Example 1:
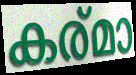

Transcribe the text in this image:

കര്മാ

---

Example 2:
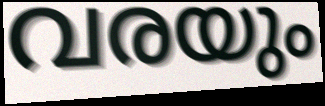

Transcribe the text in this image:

വരയും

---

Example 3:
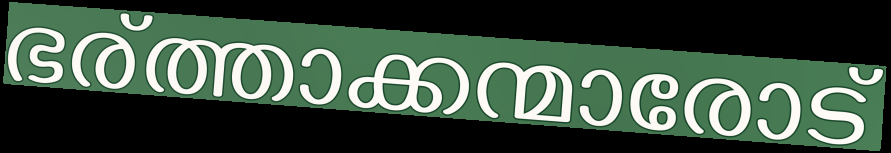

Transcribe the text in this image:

ഭര്ത്താക്കന്മാരോട്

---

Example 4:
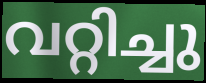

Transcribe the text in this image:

വറ്റിച്ചു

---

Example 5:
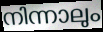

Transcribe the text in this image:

നിന്നാലും